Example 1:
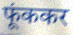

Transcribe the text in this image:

फूंककर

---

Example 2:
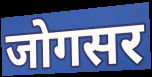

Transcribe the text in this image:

जोगसर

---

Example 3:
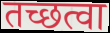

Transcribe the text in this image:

तच्छत्वा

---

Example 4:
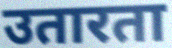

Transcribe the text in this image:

उतारता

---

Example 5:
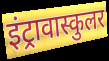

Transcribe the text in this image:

इंट्रावास्कुलर